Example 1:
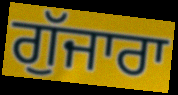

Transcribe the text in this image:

ਗੁੱਜਾਰਾ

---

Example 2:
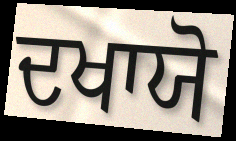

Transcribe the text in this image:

ਦਖਾਯੋ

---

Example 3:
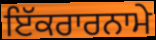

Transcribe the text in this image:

ਇੱਕਰਾਰਨਾਮੇ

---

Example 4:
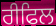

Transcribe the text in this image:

ਰੀਫਿਲ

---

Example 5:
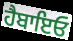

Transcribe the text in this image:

ਹੈਬਾਇਓ